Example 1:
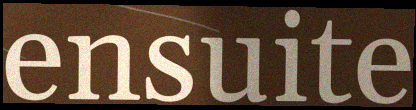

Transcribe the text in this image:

ensuite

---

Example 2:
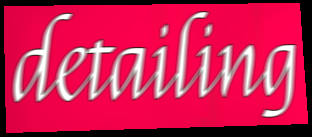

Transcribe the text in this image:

detailing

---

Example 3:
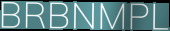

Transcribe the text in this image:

BRBNMPL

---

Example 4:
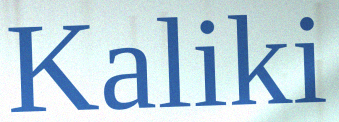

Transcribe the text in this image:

Kaliki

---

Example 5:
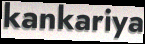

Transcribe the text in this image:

kankariya